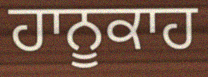
ਹਾਨੂਕਾਹ